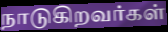
நாடுகிறவர்கள்